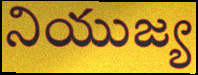
నియుజ్య